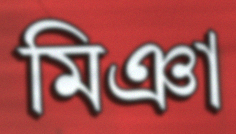
মিঞা